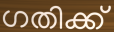
ഗതിക്ക്